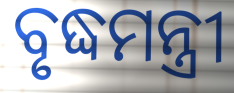
ବୃଦ୍ଧମନ୍ତ୍ରୀ